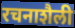
रचनाशैली